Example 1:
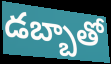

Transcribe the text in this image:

డబ్బాతో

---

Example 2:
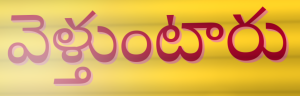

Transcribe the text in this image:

వెళ్తుంటారు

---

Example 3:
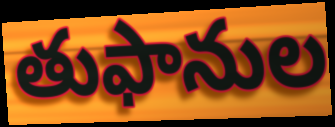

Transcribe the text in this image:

తుఫానుల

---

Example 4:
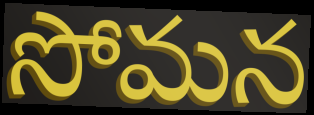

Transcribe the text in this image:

సోమన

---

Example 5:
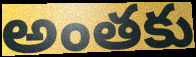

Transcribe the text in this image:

అంతకు